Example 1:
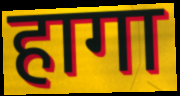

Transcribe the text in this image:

हागा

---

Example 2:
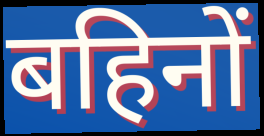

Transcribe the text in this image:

बहिनों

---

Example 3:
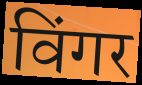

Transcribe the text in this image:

विंगर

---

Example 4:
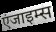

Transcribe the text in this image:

एंजाइम्‍स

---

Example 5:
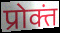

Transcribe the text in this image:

प्रोक्तं